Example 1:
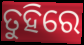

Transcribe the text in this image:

ତୁହିରେ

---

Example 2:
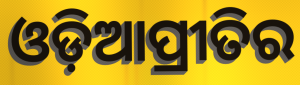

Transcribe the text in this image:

ଓଡ଼ିଆପ୍ରୀତିର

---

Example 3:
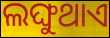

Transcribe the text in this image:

ଲଙ୍ଘୁଥାଏ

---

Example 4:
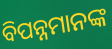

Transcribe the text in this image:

ବିପନ୍ନମାନଙ୍କ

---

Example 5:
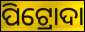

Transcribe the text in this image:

ପିଟ୍ରୋଦା